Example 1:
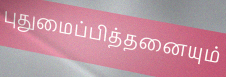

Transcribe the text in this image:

புதுமைப்பித்தனையும்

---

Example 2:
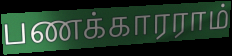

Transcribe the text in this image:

பணக்காரராம்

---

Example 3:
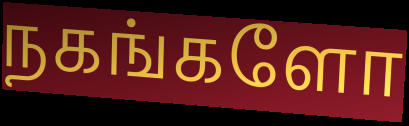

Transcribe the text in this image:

நகங்களோ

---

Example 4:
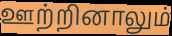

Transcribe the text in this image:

ஊற்றினாலும்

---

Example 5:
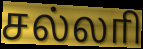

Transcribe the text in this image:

சல்லரி